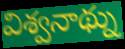
విశ్వనాథ్ను